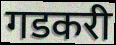
गडकरी